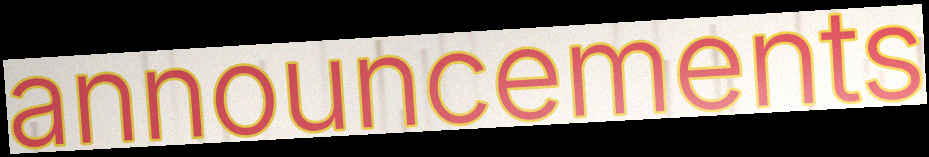
announcements